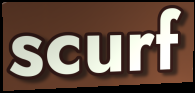
scurf